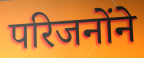
परिजनोंने